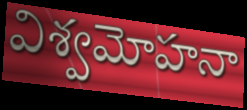
విశ్వమోహనా